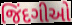
જિંદગીઓ